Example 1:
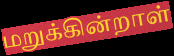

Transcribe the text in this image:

மறுக்கின்றாள்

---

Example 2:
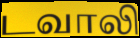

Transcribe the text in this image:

டவாலி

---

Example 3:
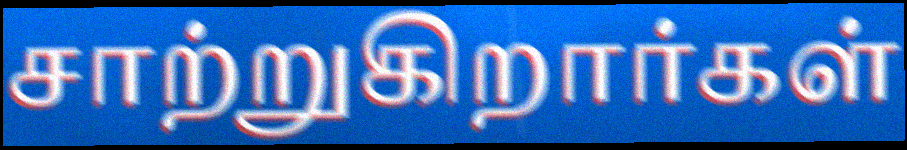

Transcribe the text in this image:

சாற்றுகிறார்கள்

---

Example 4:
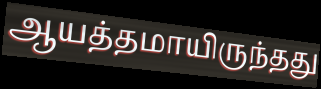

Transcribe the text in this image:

ஆயத்தமாயிருந்தது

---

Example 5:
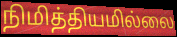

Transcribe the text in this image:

நிமித்தியமில்லை